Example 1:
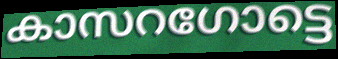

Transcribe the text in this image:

കാസറഗോട്ടെ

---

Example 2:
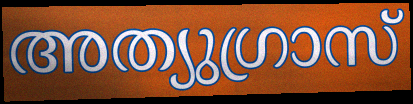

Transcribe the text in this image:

അത്യുഗ്രാസ്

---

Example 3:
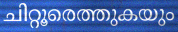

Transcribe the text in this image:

ചിറ്റൂരെത്തുകയും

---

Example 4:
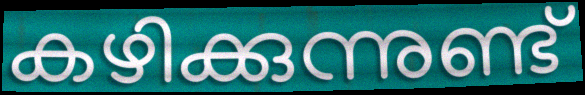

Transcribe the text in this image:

കഴിക്കുന്നുണ്ട്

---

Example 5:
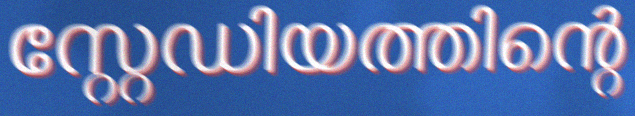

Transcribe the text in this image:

സ്റ്റേഡിയത്തിന്റെ